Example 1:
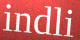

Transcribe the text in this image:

indli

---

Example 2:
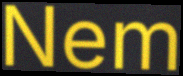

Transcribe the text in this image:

Nem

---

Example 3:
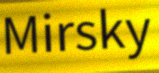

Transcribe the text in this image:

Mirsky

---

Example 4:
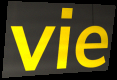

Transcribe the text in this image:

vie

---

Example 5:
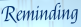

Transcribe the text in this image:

Reminding